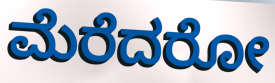
ಮೆರೆದರೋ